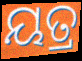
ୟତ୍ର